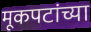
मूकपटांच्या